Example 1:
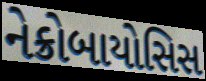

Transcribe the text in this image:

નેક્રોબાયોસિસ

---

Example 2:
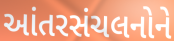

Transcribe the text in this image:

આંતરસંચલનોને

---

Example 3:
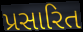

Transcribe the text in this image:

પ્રસારિત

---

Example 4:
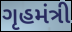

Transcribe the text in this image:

ગૃહમંત્રી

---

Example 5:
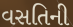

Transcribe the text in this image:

વસતિની